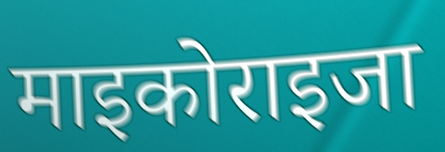
माइकोराइजा